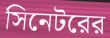
সিনেটরের